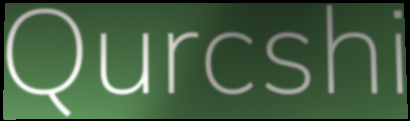
Qurcshi